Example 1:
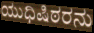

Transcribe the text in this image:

ಯುಧಿಷಿಠರನು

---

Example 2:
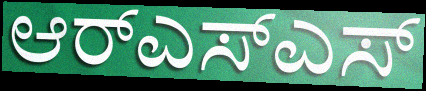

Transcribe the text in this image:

ಆರ್‌ಎಸ್ಎಸ್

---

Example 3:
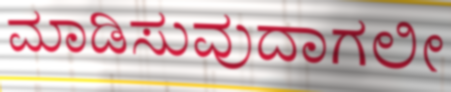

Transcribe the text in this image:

ಮಾಡಿಸುವುದಾಗಲೀ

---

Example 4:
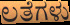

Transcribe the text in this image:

ಲತೆಗಳು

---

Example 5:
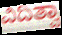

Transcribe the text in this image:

ವಿದಿತ್ವಾ